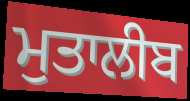
ਮੁਤਾਲੀਬ